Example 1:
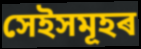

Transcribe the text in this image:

সেইসমূহৰ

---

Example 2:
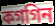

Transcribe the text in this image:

কগগিন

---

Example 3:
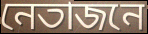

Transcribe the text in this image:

নেতাজনে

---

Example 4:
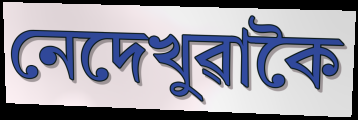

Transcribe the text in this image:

নেদেখুৱাকৈ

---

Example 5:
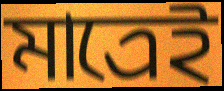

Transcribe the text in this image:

মাত্ৰেই